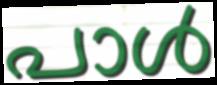
പാൾ